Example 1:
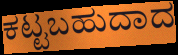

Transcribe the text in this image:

ಕಟ್ಟಬಹುದಾದ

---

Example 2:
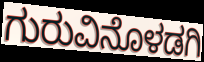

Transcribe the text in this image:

ಗುರುವಿನೊಳಡಗಿ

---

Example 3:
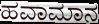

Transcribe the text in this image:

ಹವಾಮಾನ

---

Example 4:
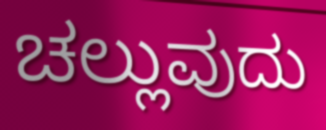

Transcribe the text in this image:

ಚಲ್ಲುವುದು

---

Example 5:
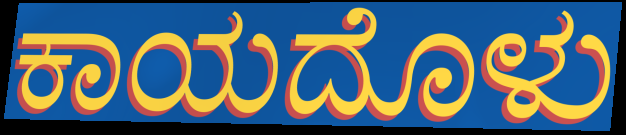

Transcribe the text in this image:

ಕಾಯದೊಳು